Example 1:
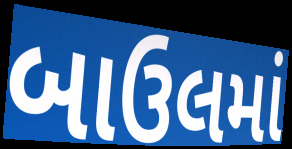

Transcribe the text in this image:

બાઉલમાં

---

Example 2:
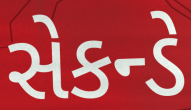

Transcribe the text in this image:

સેકન્ડે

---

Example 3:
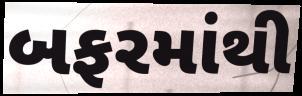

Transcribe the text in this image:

બફરમાંથી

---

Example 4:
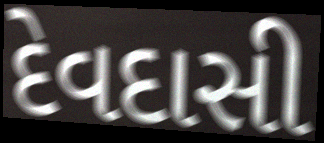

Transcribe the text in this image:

દેવદાસી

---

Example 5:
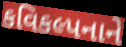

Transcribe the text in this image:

કવિકલ્પનાને